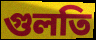
গুলতি